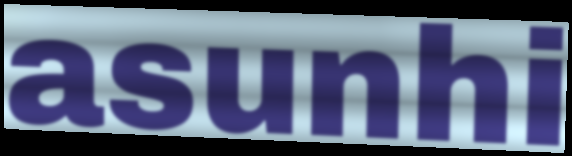
asunhi